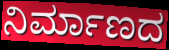
ನಿರ್ಮಾಣದ